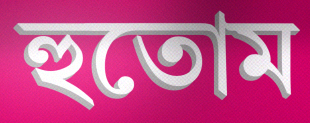
হুতোম